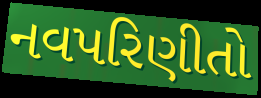
નવપરિણીતો